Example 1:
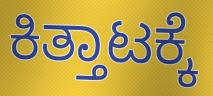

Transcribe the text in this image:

ಕಿತ್ತಾಟಕ್ಕೆ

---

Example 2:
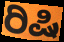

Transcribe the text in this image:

ರಿಷಿ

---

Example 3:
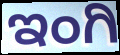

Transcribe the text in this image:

ಇಂಗಿ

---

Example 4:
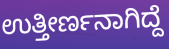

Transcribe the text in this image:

ಉತ್ತೀರ್ಣನಾಗಿದ್ದೆ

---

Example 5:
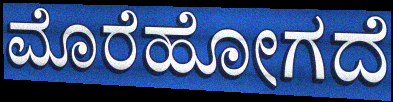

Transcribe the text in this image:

ಮೊರೆಹೋಗದೆ